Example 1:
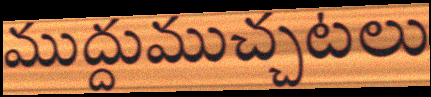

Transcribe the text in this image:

ముద్దుముచ్చటలు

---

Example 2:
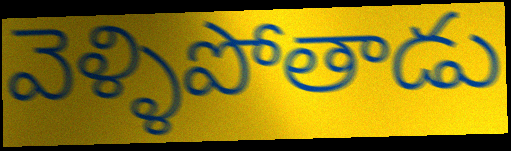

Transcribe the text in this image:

వెళ్ళిపోతాడు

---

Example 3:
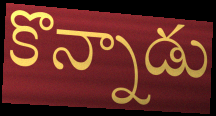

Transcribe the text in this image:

కొన్నాడు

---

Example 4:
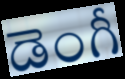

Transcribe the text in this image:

డెంగీ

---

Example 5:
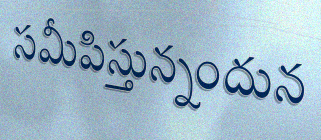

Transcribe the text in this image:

సమీపిస్తున్నందున